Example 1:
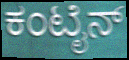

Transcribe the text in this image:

ಕಂಟೈನ್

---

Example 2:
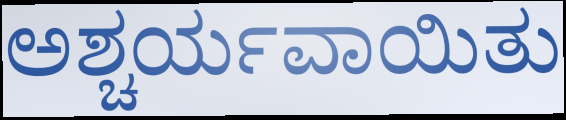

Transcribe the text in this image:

ಅಶ್ಚರ್ಯವಾಯಿತು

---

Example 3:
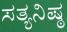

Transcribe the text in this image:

ಸತ್ಯನಿಷ್ಠ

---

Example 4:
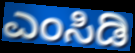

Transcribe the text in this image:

ಎಂಸಿಡಿ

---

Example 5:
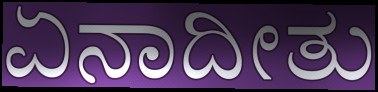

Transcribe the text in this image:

ಏನಾದೀತು